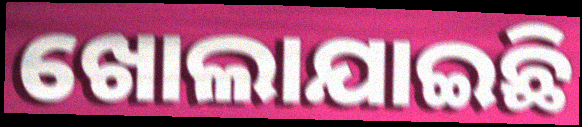
ଖୋଲାଯାଇଛି